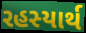
રહસ્યાર્થ